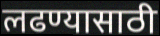
लढण्यासाठी